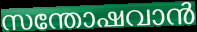
സന്തോഷവാൻ